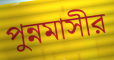
পুন্নমাসীর